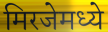
मिरजेमध्ये